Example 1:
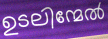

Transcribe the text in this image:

ഉടലിന്മേൽ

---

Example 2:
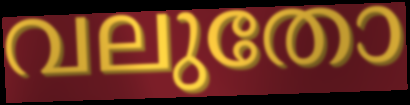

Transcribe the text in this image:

വലുതോ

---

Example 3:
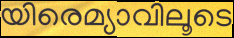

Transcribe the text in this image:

യിരെമ്യാവിലൂടെ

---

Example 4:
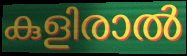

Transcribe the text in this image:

കുളിരാൽ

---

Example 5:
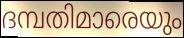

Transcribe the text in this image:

ദമ്പതിമാരെയും